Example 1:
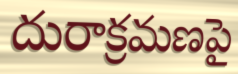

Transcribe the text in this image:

దురాక్రమణపై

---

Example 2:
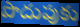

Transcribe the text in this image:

పొదుపుకు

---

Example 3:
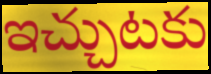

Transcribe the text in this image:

ఇచ్చుటకు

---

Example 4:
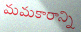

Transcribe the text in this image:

మమకారాన్ని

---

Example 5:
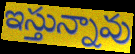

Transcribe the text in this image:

ఇస్తున్నావు